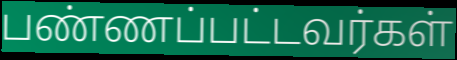
பண்ணப்பட்டவர்கள்